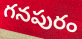
గనపురం